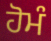
ਹੋਮੰ